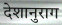
देशानुराग